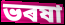
ভৰষা